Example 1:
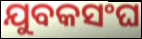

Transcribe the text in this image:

ଯୁବକସଂଘ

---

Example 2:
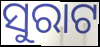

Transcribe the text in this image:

ସୁରାଟ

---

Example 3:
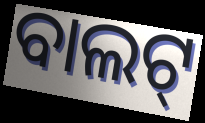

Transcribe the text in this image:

ବାଲଟ୍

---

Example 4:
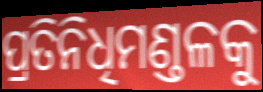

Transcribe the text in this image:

ପ୍ରତିନିଧିମଣ୍ଡଳକୁ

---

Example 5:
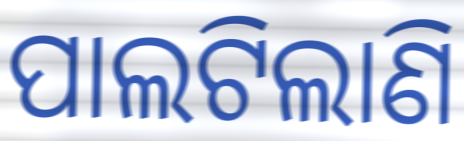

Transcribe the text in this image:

ପାଲଟିଲାଣି